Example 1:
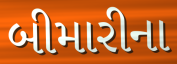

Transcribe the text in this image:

બીમારીના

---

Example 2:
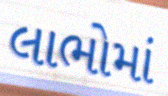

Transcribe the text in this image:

લાભોમાં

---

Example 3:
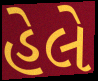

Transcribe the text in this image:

હેલે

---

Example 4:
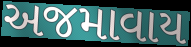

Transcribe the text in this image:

અજમાવાય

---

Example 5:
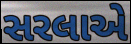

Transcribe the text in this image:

સરલાએ